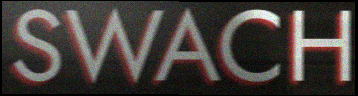
SWACH